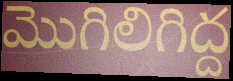
మొగిలిగిద్ద